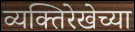
व्यक्तिरेखेच्या